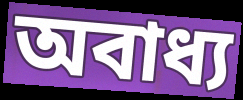
অবাধ্য